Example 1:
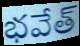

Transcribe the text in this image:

భవేత్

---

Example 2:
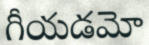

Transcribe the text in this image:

గీయడమో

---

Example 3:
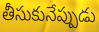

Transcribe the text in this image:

తీసుకునేప్పుడు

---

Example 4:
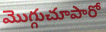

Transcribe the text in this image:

మొగ్గుచూపారో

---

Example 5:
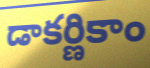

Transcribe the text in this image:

డాకర్ణికాం